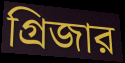
গ্রিজার